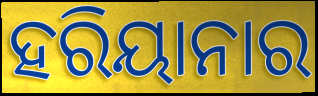
ହରିୟାନାର